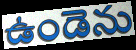
ఉండెను